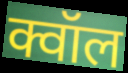
क्वॉल